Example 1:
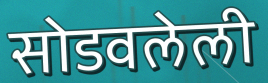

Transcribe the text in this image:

सोडवलेली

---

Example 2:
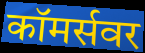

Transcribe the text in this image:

कॉमर्सवर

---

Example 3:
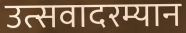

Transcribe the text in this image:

उत्सवादरम्यान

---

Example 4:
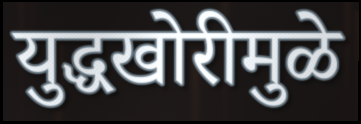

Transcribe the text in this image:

युद्धखोरीमुळे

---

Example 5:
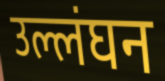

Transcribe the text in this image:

उल्लंघन